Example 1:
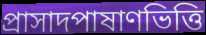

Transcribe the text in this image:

প্রাসাদপাষাণভিত্তি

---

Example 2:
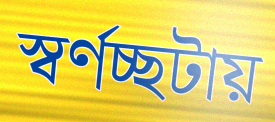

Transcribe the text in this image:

স্বর্ণচ্ছটায়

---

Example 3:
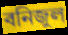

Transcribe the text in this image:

বনিজুল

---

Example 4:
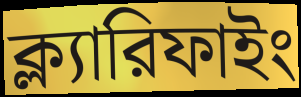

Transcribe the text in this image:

ক্ল্যারিফাইং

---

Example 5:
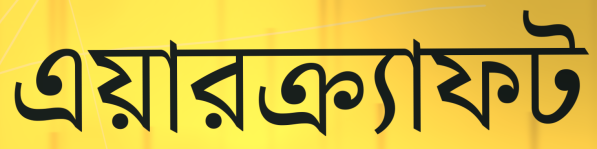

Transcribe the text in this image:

এয়ারক্র্যাফট